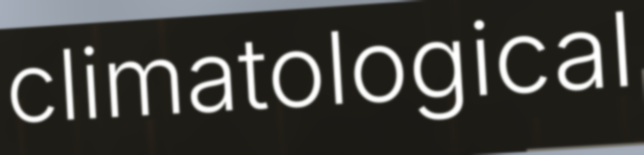
climatological